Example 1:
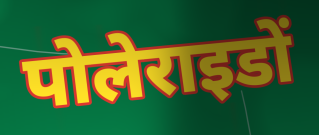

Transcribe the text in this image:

पोलेराइडों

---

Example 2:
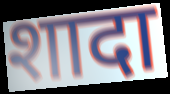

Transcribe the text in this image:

शादा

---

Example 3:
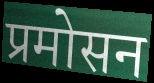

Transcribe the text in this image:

प्रमोसन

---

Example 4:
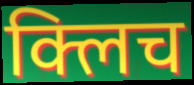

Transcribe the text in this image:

क्लिच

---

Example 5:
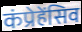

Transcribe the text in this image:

कंप्रेहेंसिव